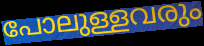
പോലുള്ളവരും